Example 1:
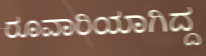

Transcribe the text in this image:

ರೂವಾರಿಯಾಗಿದ್ದ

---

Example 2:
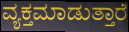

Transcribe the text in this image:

ವ್ಯಕ್ತಮಾಡುತ್ತಾರೆ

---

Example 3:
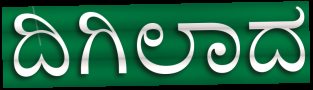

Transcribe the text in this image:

ದಿಗಿಲಾದ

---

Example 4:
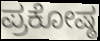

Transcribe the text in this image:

ಪ್ರಕೋಷ್ಠ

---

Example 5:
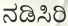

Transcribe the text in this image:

ನಡಿಸಿರಿ